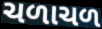
ચળાચળ